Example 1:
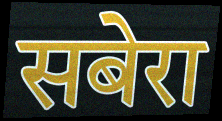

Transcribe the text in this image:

सबेरा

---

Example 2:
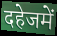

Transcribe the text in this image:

दहेजमें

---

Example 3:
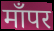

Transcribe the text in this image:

माँपर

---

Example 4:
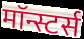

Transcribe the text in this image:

मॉन्स्टर्स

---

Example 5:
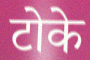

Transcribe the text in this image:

टोके